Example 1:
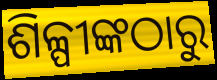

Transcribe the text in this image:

ଶିଳ୍ପୀଙ୍କଠାରୁ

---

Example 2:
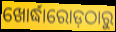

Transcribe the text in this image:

ଖୋର୍ଦ୍ଧାରୋଡ଼ଠାରୁ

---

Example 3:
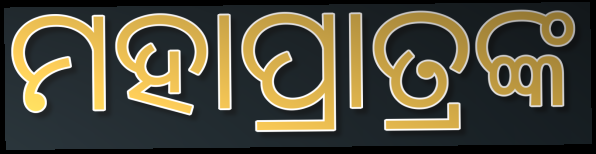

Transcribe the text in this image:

ମହାପ୍ରାତ୍ରଙ୍କ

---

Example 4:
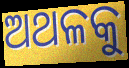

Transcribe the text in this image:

ଅଥଳକୁ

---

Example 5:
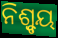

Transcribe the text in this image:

ନିଶ୍ୱ୍ଚୟ